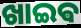
ଖାଇଵ